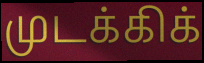
முடக்கிக்